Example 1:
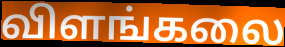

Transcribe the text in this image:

விளங்கலை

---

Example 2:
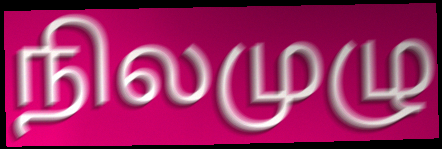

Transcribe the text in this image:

நிலமுழு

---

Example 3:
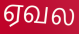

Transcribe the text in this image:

ஏவல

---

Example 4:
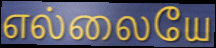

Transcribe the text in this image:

எல்லையே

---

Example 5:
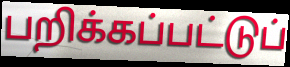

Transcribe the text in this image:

பறிக்கப்பட்டுப்